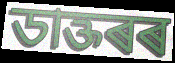
ডাক্তৰৰ